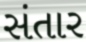
સંતાર